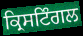
ਕ੍ਰਿਸਟਿੰਗਲ